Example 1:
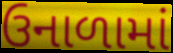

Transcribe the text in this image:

ઉનાળામાં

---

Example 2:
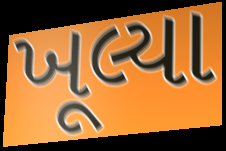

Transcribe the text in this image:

ખૂલ્યા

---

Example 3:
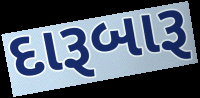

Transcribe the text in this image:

દારૂબારૂ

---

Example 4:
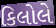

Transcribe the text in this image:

કિલોલે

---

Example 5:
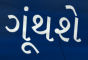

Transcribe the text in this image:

ગૂંથશે